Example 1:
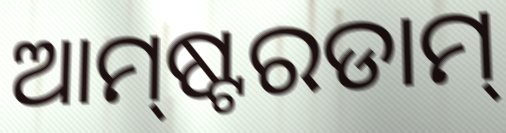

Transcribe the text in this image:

ଆମ୍‍ଷ୍ଟରଡାମ୍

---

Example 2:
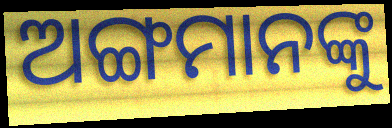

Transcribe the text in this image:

ଅଙ୍ଗମାନଙ୍କୁ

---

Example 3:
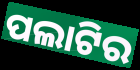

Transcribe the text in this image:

ପଲାଟିର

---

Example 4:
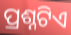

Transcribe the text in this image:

ପ୍ରଶ୍ନଟିଏ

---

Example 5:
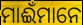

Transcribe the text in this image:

ମାଈଁମାନେ